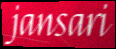
jansari